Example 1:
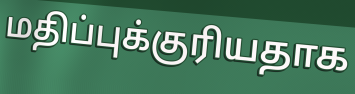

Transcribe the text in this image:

மதிப்புக்குரியதாக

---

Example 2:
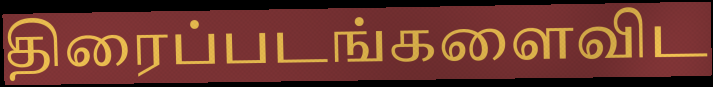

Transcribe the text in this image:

திரைப்படங்களைவிட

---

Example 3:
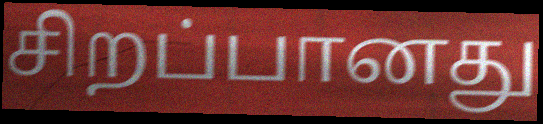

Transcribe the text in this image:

சிறப்பானது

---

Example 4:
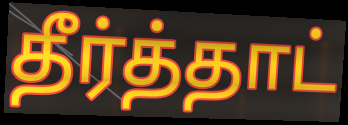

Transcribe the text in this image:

தீர்த்தாட்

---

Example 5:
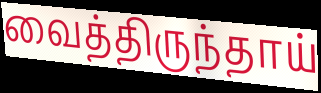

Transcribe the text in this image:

வைத்திருந்தாய்